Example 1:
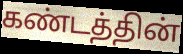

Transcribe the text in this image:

கண்டத்தின்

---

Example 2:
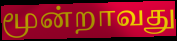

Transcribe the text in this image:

மூன்றாவது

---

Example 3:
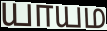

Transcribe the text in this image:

யாயம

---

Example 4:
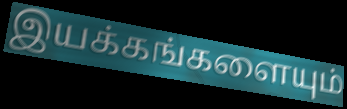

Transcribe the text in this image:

இயக்கங்களையும்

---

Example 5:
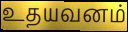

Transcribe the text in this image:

உதயவனம்